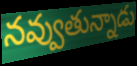
నవ్వుతున్నాడు